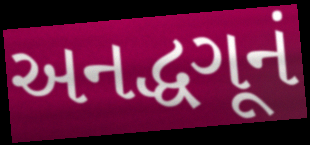
અનદ્ધગૂનં